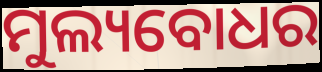
ମୁଲ୍ୟବୋଧର